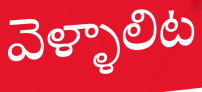
వెళ్ళాలిట